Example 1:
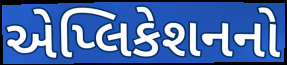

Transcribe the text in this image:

એપ્લિકેશનનો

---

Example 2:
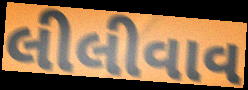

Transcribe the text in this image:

લીલીવાવ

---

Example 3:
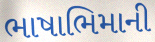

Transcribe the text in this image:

ભાષાભિમાની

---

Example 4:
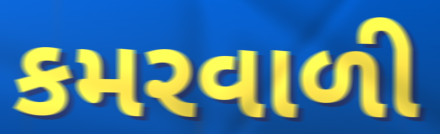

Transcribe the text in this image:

કમરવાળી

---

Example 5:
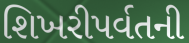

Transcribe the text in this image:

શિખરીપર્વતની